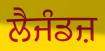
ਲੈਜੰਡਜ਼